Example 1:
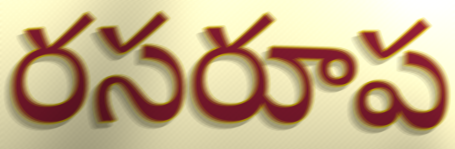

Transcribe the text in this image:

రసరూప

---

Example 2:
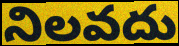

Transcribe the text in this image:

నిలవదు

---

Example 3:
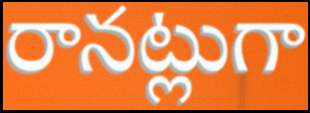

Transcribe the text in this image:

రానట్లుగా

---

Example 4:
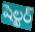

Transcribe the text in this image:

షెల్టర్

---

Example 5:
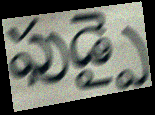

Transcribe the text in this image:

ఫుడ్పై